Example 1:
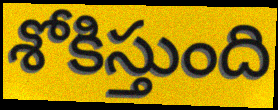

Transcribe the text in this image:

శోకిస్తుంది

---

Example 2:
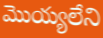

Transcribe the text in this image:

మొయ్యలేని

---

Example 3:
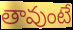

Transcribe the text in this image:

తావుంటే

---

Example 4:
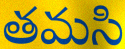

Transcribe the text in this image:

తమసి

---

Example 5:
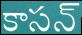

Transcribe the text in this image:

కాసన్